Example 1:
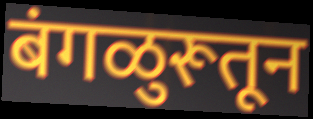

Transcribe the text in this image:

बंगळुरूतून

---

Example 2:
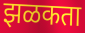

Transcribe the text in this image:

झळकता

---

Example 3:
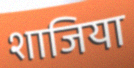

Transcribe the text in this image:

शाजिया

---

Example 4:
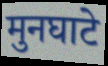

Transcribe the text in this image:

मुनघाटे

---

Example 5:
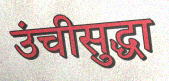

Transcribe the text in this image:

उंचीसुद्धा